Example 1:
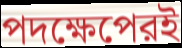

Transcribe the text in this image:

পদক্ষেপেরই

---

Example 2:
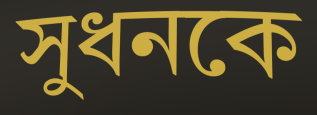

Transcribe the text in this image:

সুধনকে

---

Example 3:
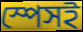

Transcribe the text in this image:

স্পেসই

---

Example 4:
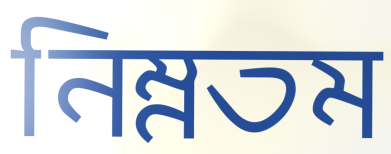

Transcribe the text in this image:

নিম্নতম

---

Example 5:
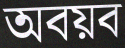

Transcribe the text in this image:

অবয়ব